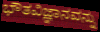
ಭೌತವಿಜ್ಞಾನವನ್ನು